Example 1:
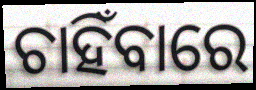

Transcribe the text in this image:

ଚାହିଁବାରେ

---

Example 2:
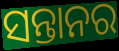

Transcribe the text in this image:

ସନ୍ତାନର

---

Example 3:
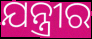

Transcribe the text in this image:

ଯନ୍ତ୍ରୀର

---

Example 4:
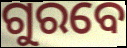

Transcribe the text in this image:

ଗୁରବେ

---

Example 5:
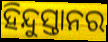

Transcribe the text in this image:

ହିନ୍ଦୁସ୍ତାନର